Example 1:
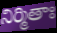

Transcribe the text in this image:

నిర్మితాః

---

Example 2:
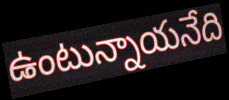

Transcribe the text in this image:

ఉంటున్నాయనేది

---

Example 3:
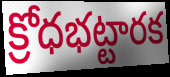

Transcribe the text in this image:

క్రోధభట్టారక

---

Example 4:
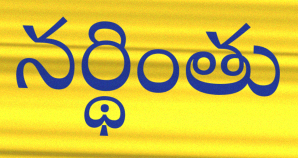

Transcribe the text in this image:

నర్థింతు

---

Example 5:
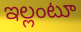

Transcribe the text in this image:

ఇల్లంటూ